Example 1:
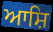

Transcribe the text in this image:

ਆਸ਼ਿ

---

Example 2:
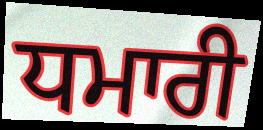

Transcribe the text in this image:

ਧਮਾਰੀ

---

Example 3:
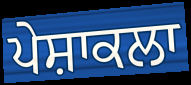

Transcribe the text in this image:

ਪੇਸ਼ਾਕਲਾ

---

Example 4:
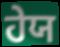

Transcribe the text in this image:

ਹੇਯ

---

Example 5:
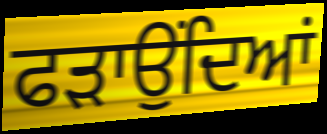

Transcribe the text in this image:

ਫੜਾਉਂਦਿਆਂ